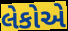
લેકોએ